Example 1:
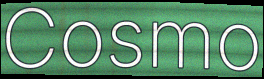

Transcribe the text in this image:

Cosmo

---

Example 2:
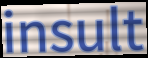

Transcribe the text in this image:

insult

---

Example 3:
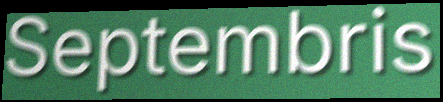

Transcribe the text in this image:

Septembris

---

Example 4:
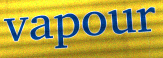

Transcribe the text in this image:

vapour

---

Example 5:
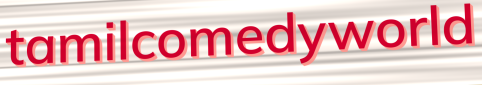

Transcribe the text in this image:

tamilcomedyworld